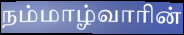
நம்மாழ்வாரின்